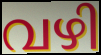
വഴി